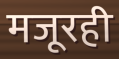
मजूरही